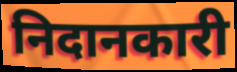
निदानकारी